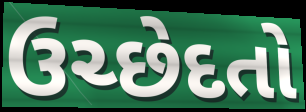
ઉચ્છેદતો